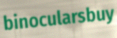
binocularsbuy